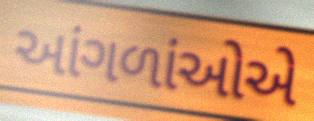
આંગળાંઓએ